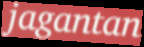
jagantan